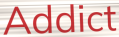
Addict